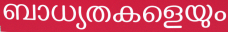
ബാധ്യതകളെയും